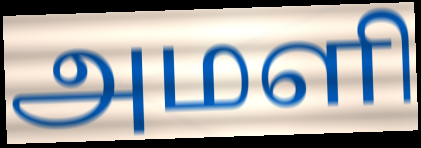
அமளி